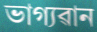
ভাগ্যৱান